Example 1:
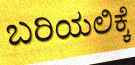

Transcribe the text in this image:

ಬರಿಯಲಿಕ್ಕೆ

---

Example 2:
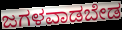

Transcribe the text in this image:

ಜಗಳವಾಡಬೇಡ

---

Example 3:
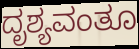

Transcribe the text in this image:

ದೃಶ್ಯವಂತೂ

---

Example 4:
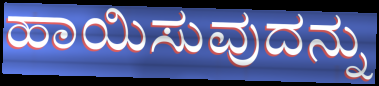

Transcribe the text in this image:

ಹಾಯಿಸುವುದನ್ನು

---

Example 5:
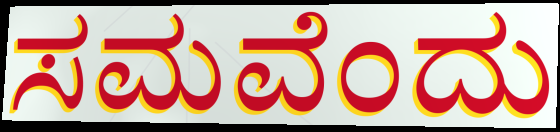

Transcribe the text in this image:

ಸಮವೆಂದು